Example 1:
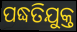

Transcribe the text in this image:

ପଦ୍ଧତିଯୁକ୍ତ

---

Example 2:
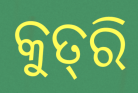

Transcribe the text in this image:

କୁତ୍‌ରି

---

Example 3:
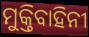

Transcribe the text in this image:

ମୁକ୍ତିବାହିନୀ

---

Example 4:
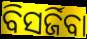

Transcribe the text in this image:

ବିସର୍ଜିବା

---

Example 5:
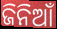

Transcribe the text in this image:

ଜିନିଆଁ